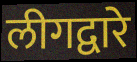
लीगद्वारे